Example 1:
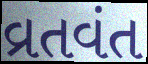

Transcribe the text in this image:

વ્રતવંત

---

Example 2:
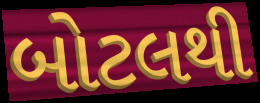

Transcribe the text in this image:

બોટલથી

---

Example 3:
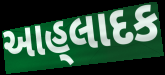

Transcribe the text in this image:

આહ્‌લાદક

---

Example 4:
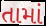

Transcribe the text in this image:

તામાં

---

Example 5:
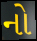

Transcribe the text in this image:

નો